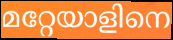
മറ്റേയാളിനെ